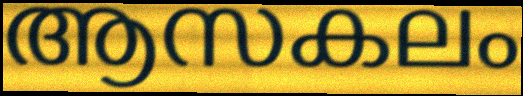
ആസകലം